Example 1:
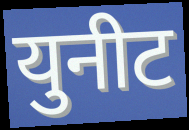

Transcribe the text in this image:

युनीट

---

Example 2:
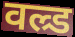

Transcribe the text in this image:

वल्र्ड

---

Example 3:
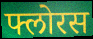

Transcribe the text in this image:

फ्लोरस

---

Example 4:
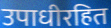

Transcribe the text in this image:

उपाधीरहित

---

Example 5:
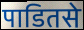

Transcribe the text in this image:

पाडितसे